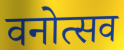
वनोत्सव